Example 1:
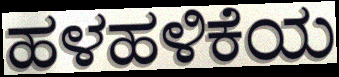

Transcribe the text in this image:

ಹಳಹಳಿಕೆಯ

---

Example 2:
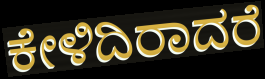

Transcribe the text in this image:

ಕೇಳಿದಿರಾದರೆ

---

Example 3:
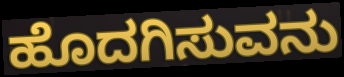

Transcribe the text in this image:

ಹೊದಗಿಸುವನು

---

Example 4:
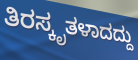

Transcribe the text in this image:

ತಿರಸ್ಕೃತಳಾದದ್ದು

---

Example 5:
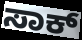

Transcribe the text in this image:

ಸಾಕ್